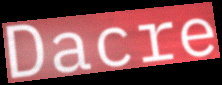
Dacre